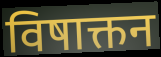
विषाक्तन